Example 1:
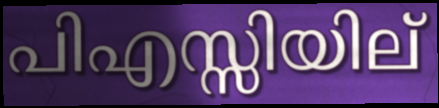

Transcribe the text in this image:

പിഎസ്സിയില്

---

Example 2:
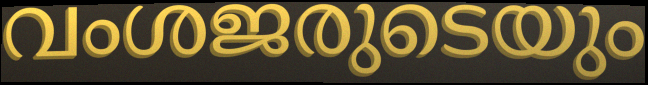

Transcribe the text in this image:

വംശജരുടെയും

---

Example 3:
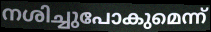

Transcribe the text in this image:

നശിച്ചുപോകുമെന്ന്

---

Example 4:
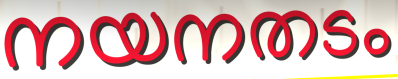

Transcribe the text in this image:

നയനതടം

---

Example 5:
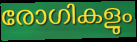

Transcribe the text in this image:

രോഗികളും